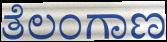
ತೆಲಂಗಾಣ